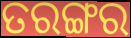
ତରଙ୍ଗର